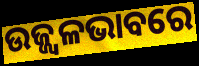
ଉଜ୍ଜ୍ୱଳଭାବରେ